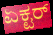
ಏಕ್ಟರ್